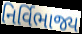
નિર્વિભાજ્ય